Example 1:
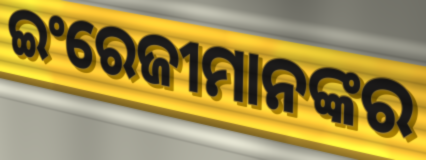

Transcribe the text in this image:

ଇଂରେଜୀମାନଙ୍କର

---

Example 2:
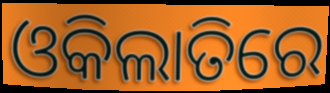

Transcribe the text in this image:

ଓକିଲାତିରେ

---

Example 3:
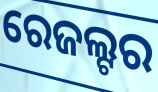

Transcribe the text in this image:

ରେଜଲ୍ଟର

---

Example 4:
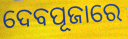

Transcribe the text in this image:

ଦେବପୂଜାରେ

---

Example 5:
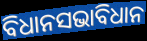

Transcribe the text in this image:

ବିଧାନସଭାବିଧାନ